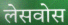
लेसवोस